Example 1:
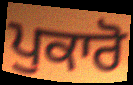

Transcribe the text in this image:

ਪੁਕਾਰੋ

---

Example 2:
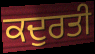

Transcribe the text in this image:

ਕਦੁਰਤੀ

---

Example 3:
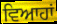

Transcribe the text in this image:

ਵਿਆਹਾਂ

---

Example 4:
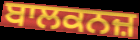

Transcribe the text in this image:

ਬਾਲਕਨਜ਼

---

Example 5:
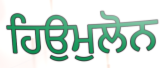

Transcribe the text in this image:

ਹਿਉਮੁਲੋਨ